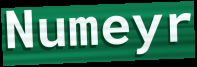
Numeyr